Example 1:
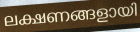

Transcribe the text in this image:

ലക്ഷണങ്ങളായി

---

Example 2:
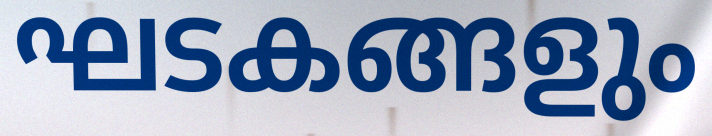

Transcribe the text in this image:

ഘടകങ്ങളും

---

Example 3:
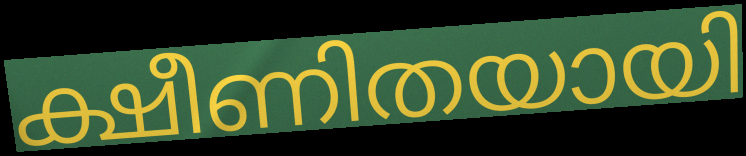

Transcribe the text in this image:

ക്ഷീണിതയായി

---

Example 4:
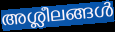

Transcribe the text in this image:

അശ്ലീലങ്ങൾ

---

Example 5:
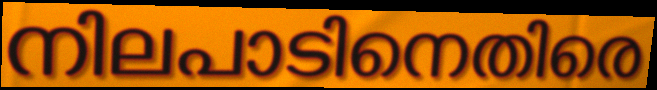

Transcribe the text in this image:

നിലപാടിനെതിരെ